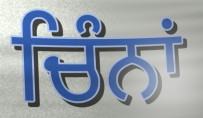
ਚਿੰਨਾਂ